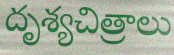
దృశ్యచిత్రాలు